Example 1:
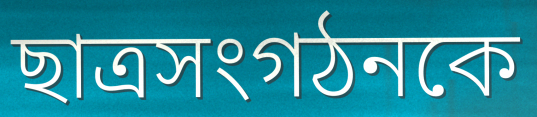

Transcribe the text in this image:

ছাত্রসংগঠনকে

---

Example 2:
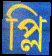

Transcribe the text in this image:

প্লি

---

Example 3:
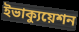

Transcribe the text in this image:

ইভাক্যুয়েশন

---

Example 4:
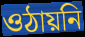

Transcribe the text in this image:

ওঠায়নি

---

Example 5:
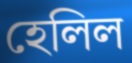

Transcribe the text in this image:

হেলিল